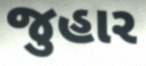
જુહાર